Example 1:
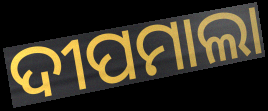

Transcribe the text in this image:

ଦୀପମାଲା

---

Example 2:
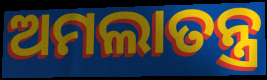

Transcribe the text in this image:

ଅମଲାତନ୍ତ୍ର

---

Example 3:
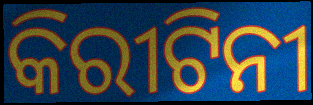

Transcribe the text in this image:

କିରୀଟିନୀ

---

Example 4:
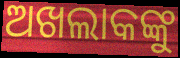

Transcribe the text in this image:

ଅଖଲାକଙ୍କୁ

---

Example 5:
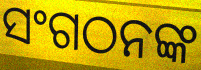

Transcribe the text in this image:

ସଂଗଠନଙ୍କ